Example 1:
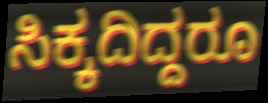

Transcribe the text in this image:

ಸಿಕ್ಕದಿದ್ದರೂ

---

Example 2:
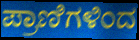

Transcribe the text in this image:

ಪ್ರಾಣಿಗಳಿಂದ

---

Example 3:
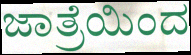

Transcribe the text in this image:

ಜಾತ್ರೆಯಿಂದ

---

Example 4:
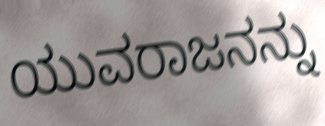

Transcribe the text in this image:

ಯುವರಾಜನನ್ನು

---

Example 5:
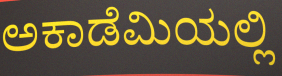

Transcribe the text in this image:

ಅಕಾಡೆಮಿಯಲ್ಲಿ